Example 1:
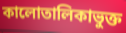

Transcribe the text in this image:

কালোতালিকাভুক্ত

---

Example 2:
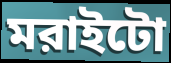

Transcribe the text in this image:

মরাইটো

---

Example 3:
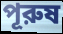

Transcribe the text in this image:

পূরুষ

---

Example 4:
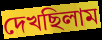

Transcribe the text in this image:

দেখছিলাম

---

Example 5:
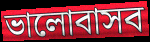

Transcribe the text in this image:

ভালোবাসব